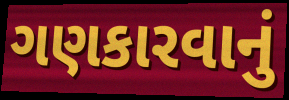
ગણકારવાનું